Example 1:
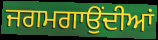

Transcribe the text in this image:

ਜਗਮਗਾਉਂਦੀਆਂ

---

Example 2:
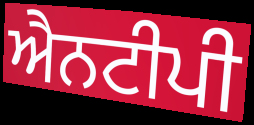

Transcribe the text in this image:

ਐਨਟੀਪੀ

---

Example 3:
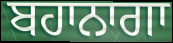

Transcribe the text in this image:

ਬਹਾਨਾਗਾ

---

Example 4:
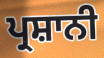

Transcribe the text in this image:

ਪ੍ਰਸ਼ਾਨੀ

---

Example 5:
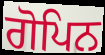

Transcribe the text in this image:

ਗੋਪਿਨ